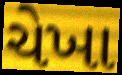
ચેખા